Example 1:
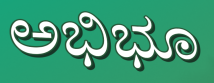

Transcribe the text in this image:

ಅಭಿಭೂ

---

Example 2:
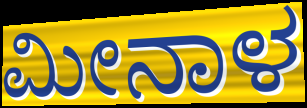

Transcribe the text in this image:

ಮೀನಾಳ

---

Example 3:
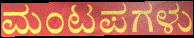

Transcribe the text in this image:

ಮಂಟಪಗಳು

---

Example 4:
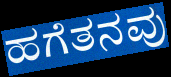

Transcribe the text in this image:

ಹಗೆತನವು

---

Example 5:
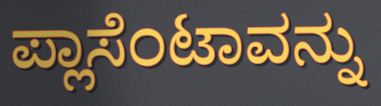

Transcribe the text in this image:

ಪ್ಲಾಸೆಂಟಾವನ್ನು